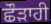
ਛੌੜਾਹੀ